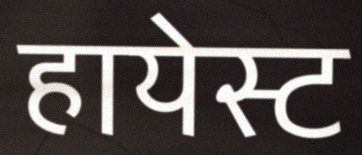
हायेस्ट